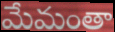
మేమంతా